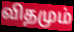
விதமும்